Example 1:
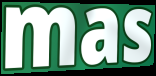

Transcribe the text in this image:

mas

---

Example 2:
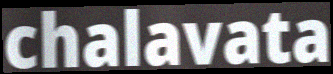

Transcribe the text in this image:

chalavata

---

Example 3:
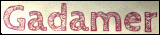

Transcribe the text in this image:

Gadamer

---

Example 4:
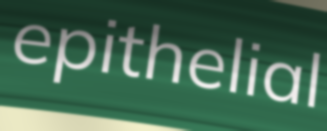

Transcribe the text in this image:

epithelial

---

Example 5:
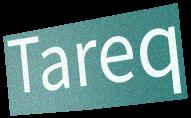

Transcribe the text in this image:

Tareq